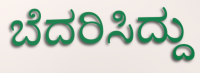
ಬೆದರಿಸಿದ್ದು